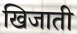
खिजाती